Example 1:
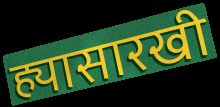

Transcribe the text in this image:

ह्यासारखी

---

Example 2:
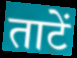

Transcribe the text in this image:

ताटें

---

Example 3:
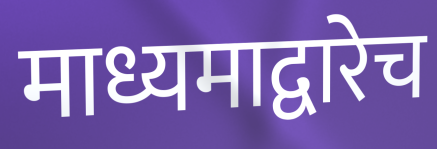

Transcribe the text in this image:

माध्यमाद्वारेच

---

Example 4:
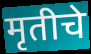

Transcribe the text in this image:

मृतीचे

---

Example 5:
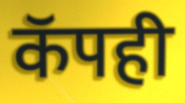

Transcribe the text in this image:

कॅपही